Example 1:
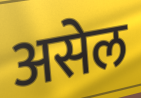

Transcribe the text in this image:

असेल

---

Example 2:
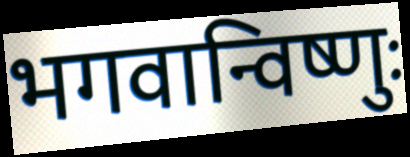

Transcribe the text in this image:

भगवान्विष्णुः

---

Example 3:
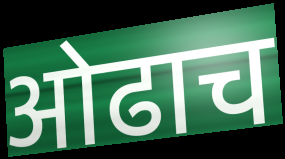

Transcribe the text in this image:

ओढाच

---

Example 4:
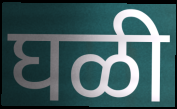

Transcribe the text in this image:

घळी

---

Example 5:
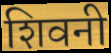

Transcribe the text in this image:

शिवनी